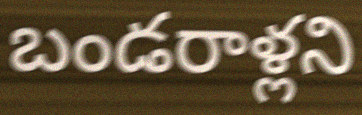
బండరాళ్లని